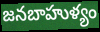
జనబాహుళ్యం